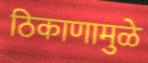
ठिकाणामुळे